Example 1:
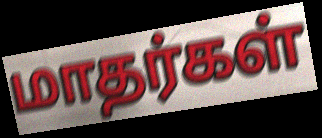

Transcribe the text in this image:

மாதர்கள்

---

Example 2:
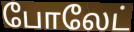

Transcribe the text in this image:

போலேட்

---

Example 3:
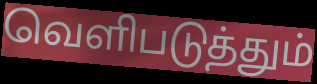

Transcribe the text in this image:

வெளிபடுத்தும்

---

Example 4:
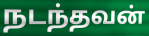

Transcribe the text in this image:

நடந்தவன்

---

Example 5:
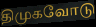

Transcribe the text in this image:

திமுகவோடு